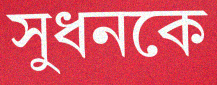
সুধনকে